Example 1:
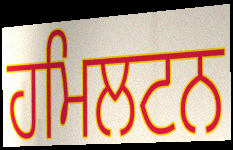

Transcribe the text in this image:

ਹਮਿਲਟਨ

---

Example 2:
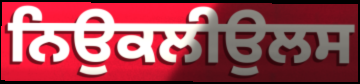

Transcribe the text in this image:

ਨਿਉਕਲੀਉਲਸ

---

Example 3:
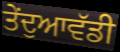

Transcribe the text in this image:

ਤੇਂਦੁਆਵੱਡੀ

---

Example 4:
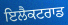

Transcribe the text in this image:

ਇਲੈਕਟਰਾਡ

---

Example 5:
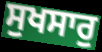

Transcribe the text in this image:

ਸੁਖਸਾਰੁ